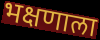
भक्षणाला